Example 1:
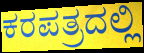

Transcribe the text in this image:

ಕರಪತ್ರದಲ್ಲಿ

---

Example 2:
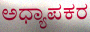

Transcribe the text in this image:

ಅಧ್ಯಾಪಕರ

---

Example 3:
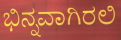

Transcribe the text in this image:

ಭಿನ್ನವಾಗಿರಲಿ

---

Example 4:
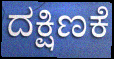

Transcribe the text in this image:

ದಕ್ಷಿಣಕೆ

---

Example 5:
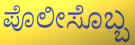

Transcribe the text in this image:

ಪೊಲೀಸೊಬ್ಬ